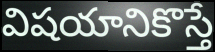
విషయానికొస్తే